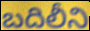
బదిలీని